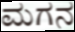
ಮಗನ